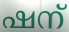
ഷന്